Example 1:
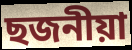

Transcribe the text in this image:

ছজনীয়া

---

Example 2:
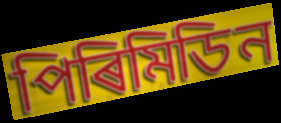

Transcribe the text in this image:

পিৰিমিডিন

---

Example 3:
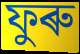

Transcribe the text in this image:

ফুৰু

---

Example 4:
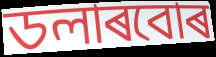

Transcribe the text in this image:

ডলাৰবোৰ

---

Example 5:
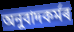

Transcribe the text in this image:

অনুবাদকৰ্মৰ